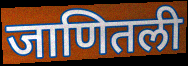
जाणितली